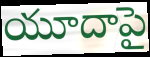
యూదాపై